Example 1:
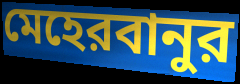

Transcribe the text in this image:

মেহেরবানুর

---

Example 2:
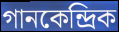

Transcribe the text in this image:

গানকেন্দ্রিক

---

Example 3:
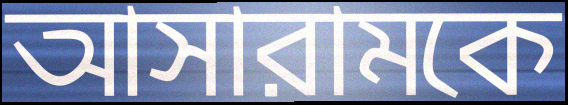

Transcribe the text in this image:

আসারামকে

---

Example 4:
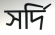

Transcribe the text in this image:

সর্দি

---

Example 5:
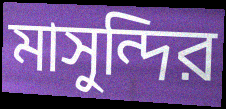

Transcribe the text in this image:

মাসুন্দির